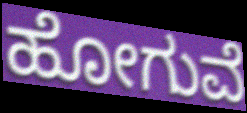
ಹೋಗುವೆ